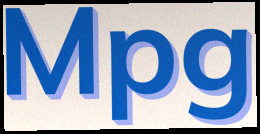
Mpg